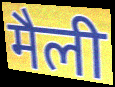
मैली